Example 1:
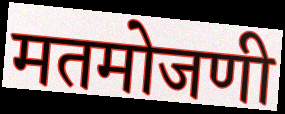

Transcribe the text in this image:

मतमोजणी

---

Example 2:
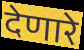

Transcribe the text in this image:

देणारे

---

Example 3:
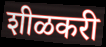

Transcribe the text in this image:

शीळकरी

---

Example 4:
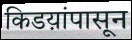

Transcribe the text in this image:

किडय़ांपासून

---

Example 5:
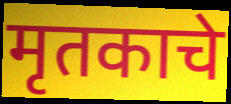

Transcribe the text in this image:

मृतकाचे